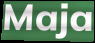
Maja